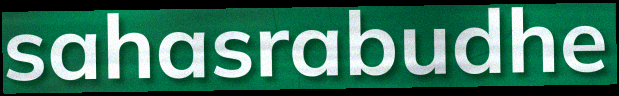
sahasrabudhe